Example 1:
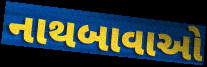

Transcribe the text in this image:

નાથબાવાઓ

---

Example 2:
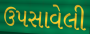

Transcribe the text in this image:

ઉપસાવેલી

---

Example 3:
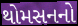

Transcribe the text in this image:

થોમસનનો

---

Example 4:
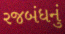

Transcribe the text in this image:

રજબંધનું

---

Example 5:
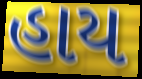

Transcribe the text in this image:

હાય